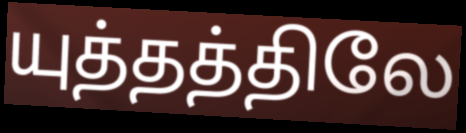
யுத்தத்திலே